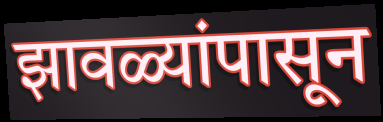
झावळ्यांपासून